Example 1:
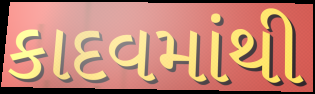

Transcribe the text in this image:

કાદવમાંથી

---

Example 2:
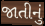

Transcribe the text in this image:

જાતીનું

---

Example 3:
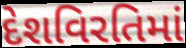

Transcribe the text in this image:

દેશવિરતિમાં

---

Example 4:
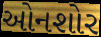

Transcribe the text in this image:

ઓનશોર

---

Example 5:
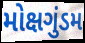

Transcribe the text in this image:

મોક્ષગુંડમ